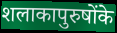
शलाकापुरुषोंके